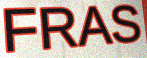
FRAS